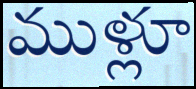
ముళ్లూ